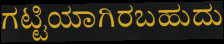
ಗಟ್ಟಿಯಾಗಿರಬಹುದು